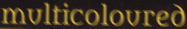
multicoloured